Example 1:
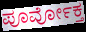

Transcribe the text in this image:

ಪೂರ್ವೋಕ್ತ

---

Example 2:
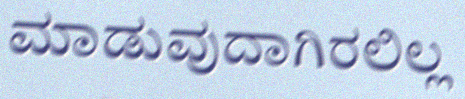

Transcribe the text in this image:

ಮಾಡುವುದಾಗಿರಲಿಲ್ಲ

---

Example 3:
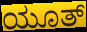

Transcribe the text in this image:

ಯೂತ್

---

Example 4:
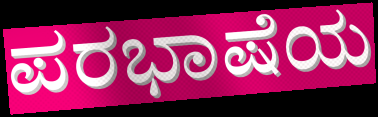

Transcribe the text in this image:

ಪರಭಾಷೆಯ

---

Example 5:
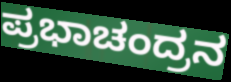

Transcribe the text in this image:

ಪ್ರಭಾಚಂದ್ರನ